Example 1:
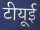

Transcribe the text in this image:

टीयूई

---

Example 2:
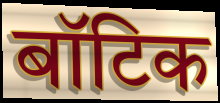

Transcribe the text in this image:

बॉटिक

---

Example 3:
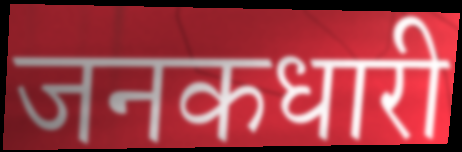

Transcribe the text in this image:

जनकधारी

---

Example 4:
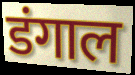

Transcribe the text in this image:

डंगाल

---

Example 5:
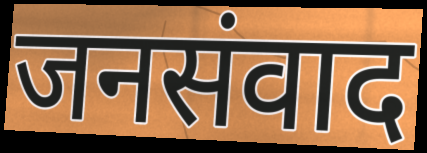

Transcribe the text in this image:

जनसंवाद